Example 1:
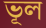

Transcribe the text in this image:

ভূল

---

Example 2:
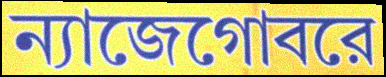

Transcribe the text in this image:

ন্যাজেগোবরে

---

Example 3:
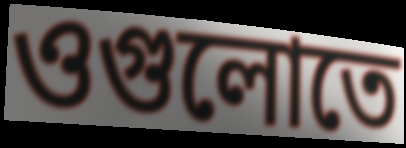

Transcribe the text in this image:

ওগুলোতে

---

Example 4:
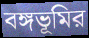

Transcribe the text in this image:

বঙ্গভূমির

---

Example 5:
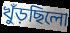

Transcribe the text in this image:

খুঁড়ছিলো